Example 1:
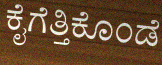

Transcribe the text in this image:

ಕೈಗೆತ್ತಿಕೊಂಡೆ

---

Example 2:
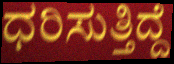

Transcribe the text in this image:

ಧರಿಸುತ್ತಿದ್ದೆ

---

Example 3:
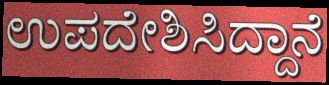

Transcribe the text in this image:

ಉಪದೇಶಿಸಿದ್ದಾನೆ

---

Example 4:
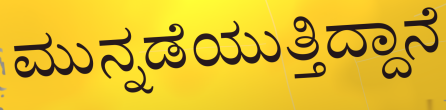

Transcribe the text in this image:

ಮುನ್ನಡೆಯುತ್ತಿದ್ದಾನೆ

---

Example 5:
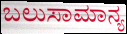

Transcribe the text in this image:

ಬಲುಸಾಮಾನ್ಯ